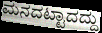
ಮನದಟ್ಟಾದದ್ದು